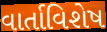
વાર્તાવિશેષ